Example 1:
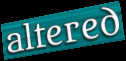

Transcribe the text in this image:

altered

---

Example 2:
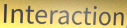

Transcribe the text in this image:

Interaction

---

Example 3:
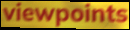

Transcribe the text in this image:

viewpoints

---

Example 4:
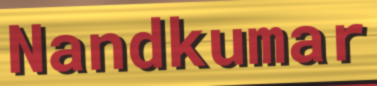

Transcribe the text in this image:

Nandkumar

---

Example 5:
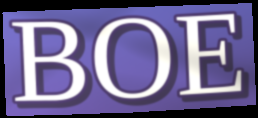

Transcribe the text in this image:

BOE